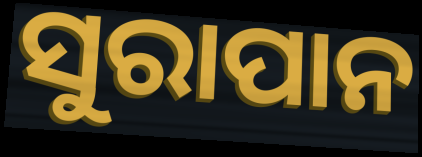
ସୁରାପାନ